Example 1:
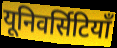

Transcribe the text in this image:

यूनिवर्सिटियाँ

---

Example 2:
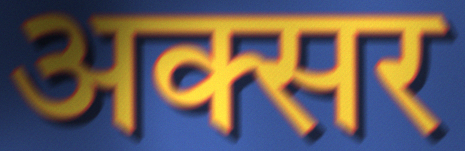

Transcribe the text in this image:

अक्‍सर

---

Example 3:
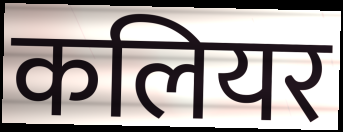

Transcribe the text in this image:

कलियर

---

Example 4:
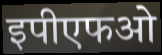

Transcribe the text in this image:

इपीएफओ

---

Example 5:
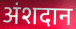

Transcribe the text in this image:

अंशदान